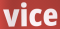
vice